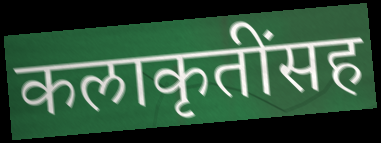
कलाकृतींसह